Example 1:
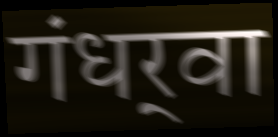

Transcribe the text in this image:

गंधर्वा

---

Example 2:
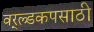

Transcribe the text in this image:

वर्ल्डकपसाठी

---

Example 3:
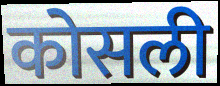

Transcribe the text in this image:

कोसली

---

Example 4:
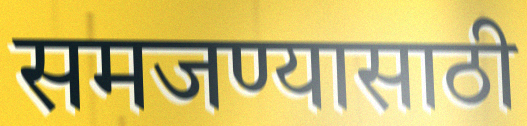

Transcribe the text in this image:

समजण्यासाठी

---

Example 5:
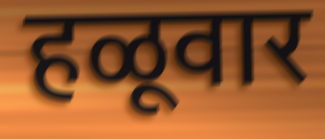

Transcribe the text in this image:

हळूवार